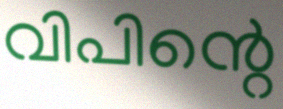
വിപിന്റെ